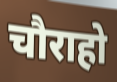
चौराहो